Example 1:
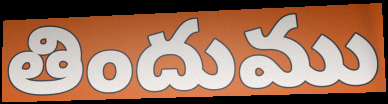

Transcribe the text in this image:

తిందుము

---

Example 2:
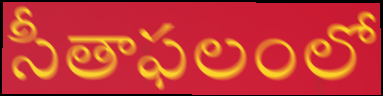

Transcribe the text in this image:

సీతాఫలంలో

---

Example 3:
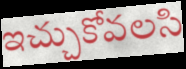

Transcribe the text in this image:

ఇచ్చుకోవలసి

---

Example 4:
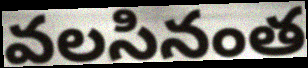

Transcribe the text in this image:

వలసినంత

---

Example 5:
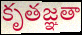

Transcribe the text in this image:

కృతజ్ఞతా